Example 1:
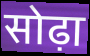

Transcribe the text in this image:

सोढ़ा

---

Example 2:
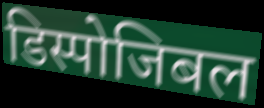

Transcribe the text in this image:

डिस्पोजिबल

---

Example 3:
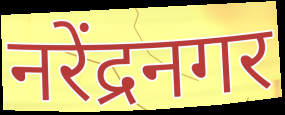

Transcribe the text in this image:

नरेंद्रनगर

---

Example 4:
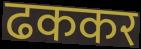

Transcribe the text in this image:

ढककर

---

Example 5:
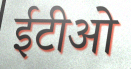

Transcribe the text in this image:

ईटीओ